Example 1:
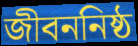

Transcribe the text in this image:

জীবননিষ্ঠ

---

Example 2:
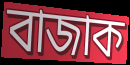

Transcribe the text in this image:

বাজাক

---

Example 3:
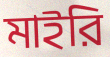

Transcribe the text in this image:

মাইরি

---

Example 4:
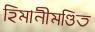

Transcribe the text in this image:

হিমানীমণ্ডিত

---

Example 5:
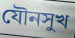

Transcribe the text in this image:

যৌনসুখ